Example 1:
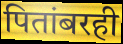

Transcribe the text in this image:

पितांबरही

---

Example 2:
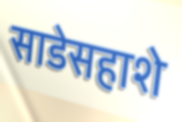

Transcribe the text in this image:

साडेसहाशे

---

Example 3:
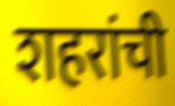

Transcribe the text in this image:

शहरांची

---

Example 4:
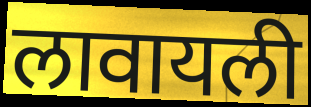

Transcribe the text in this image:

लावायली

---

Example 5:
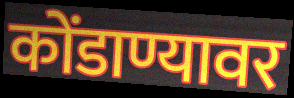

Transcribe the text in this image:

कोंडाण्यावर